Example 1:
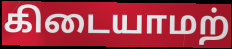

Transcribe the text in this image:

கிடையாமற்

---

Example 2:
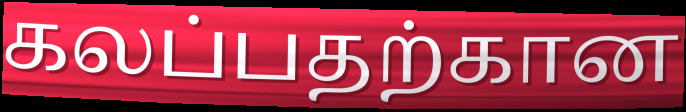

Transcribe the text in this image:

கலப்பதற்கான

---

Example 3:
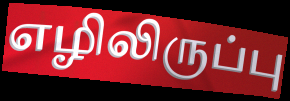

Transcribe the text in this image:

எழிலிருப்பு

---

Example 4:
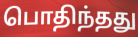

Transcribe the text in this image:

பொதிந்தது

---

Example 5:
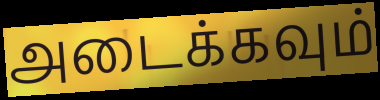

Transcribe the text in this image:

அடைக்கவும்